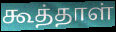
கூத்தாள்